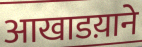
आखाडय़ाने